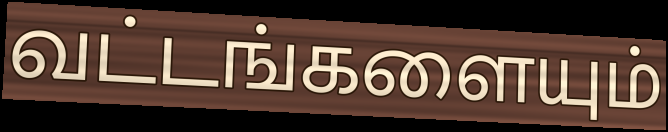
வட்டங்களையும்